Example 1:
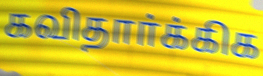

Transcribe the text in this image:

கவிதார்க்கிக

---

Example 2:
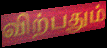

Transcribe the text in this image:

விற்பதும்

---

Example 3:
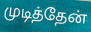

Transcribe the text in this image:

முடித்தேன்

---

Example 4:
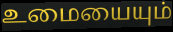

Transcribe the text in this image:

உமையையும்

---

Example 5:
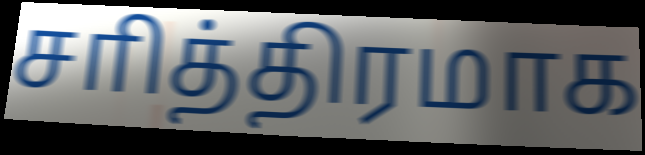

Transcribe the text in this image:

சரித்திரமாக